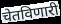
चेतविणारी